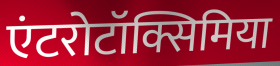
एंटरोटॉक्सिमिया